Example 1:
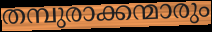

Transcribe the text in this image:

തമ്പുരാക്കന്മാരും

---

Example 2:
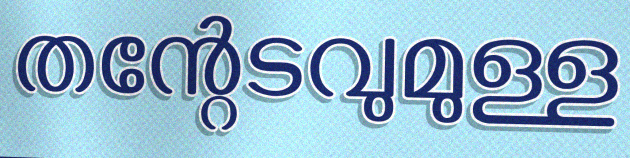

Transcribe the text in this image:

തന്റേടവുമുള്ള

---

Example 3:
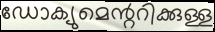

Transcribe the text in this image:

ഡോക്യുമെന്ററിക്കുള്ള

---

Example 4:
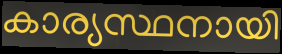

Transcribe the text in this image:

കാര്യസ്ഥനായി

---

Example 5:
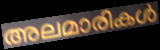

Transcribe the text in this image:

അലമാരികൾ